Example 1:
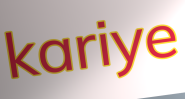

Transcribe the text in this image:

kariye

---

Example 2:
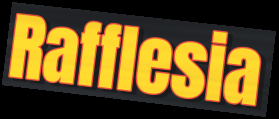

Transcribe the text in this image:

Rafflesia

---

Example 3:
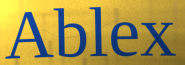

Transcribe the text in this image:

Ablex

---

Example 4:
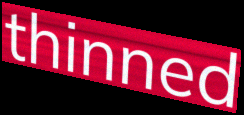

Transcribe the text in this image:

thinned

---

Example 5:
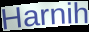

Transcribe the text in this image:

Harnih